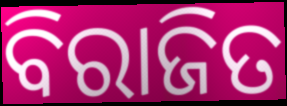
ବିରାଜିତ